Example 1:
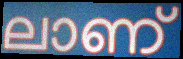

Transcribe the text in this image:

ലാണ്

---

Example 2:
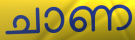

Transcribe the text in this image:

ചാണ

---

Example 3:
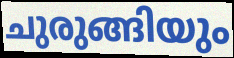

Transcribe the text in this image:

ചുരുങ്ങിയും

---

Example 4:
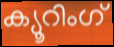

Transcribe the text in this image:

ക്യൂറിംഗ്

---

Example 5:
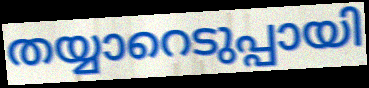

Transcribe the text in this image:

തയ്യാറെടുപ്പായി